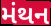
મંથન